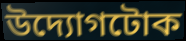
উদ্যোগটোক